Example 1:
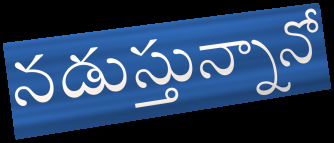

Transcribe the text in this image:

నడుస్తున్నానో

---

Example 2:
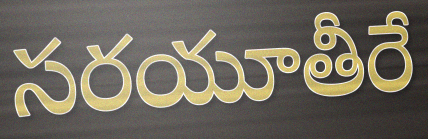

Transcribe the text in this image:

సరయూతీరే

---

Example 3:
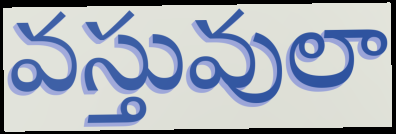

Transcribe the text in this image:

వస్తువులా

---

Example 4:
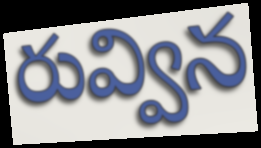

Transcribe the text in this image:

రువ్విన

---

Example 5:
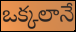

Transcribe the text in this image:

ఒక్కలానే